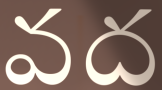
వద